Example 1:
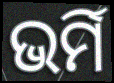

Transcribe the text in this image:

ଭର୍ମି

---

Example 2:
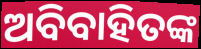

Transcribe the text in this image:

ଅବିବାହିତଙ୍କ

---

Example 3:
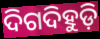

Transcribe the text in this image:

ଦିଗଦିହୁଡ଼ି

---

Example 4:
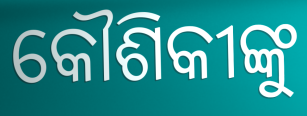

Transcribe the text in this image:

କୌଶିକୀଙ୍କୁ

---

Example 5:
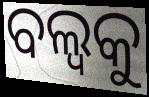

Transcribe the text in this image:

ବଲ୍ବକୁ